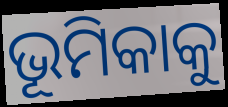
ଭୂମିକାକୁ